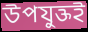
উপযুক্তই